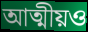
আত্মীয়ও